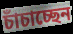
চাঁচাচ্ছেন